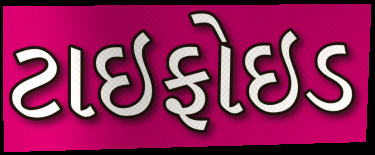
ટાઇફોઇડ